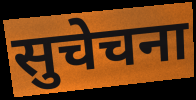
सुचेचना